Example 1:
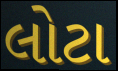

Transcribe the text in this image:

લોટા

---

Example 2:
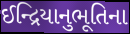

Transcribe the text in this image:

ઈન્દ્રિયાનુભૂતિના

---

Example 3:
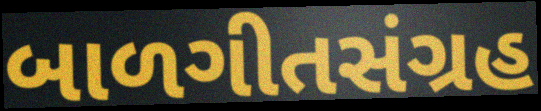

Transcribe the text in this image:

બાળગીતસંગ્રહ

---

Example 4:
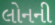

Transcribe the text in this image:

લોનની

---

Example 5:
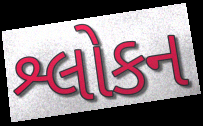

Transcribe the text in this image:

શ્લોકન